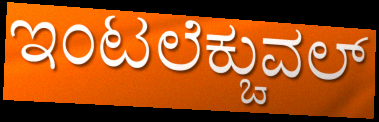
ಇಂಟಲೆಕ್ಚುವಲ್